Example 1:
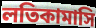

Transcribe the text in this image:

লতিকামাসি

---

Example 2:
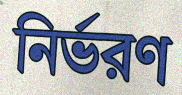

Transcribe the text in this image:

নির্ভরণ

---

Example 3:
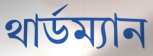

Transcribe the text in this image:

থার্ডম্যান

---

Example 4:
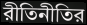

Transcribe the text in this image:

রীতিনীতির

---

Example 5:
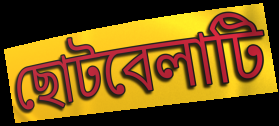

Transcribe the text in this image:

ছোটবেলাটি